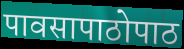
पावसापाठोपाठ